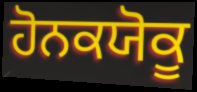
ਹੋਨਕਯੋਕੂ